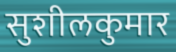
सुशीलकुमार